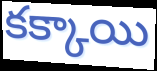
కక్కాయి